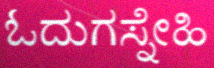
ಓದುಗಸ್ನೇಹಿ